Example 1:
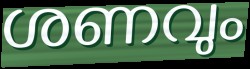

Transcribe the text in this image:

ശണവും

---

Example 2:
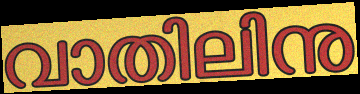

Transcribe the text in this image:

വാതിലിനു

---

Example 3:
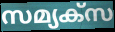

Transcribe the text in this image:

സമ്യക്സ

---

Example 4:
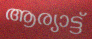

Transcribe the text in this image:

ആര്യാട്ട്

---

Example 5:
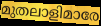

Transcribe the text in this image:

മുതലാളിമാരേ